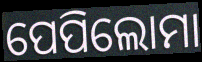
ପେପିଲୋମା